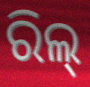
ରିଲ୍